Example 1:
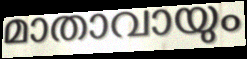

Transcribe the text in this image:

മാതാവായും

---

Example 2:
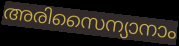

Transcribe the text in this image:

അരിസൈന്യാനാം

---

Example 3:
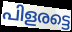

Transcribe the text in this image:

പിളരട്ടെ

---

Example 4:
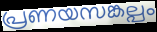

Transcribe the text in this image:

പ്രണയസങ്കല്പം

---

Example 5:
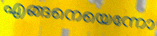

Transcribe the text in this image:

എങ്ങനെയെന്നോ